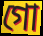
গো